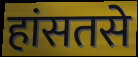
हांसतसे